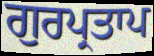
ਗੁਰਪ੍ਰਤਾਪ